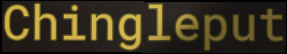
Chingleput